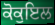
ਕੋਕੁਇਲ